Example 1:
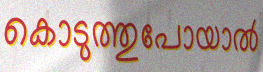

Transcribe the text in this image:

കൊടുത്തുപോയാൽ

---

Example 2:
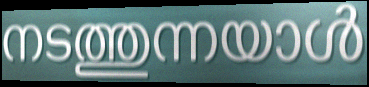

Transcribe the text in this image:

നടത്തുന്നയാൾ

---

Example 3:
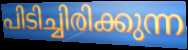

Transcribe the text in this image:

പിടിച്ചിരിക്കുന്ന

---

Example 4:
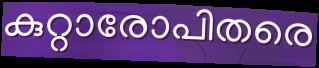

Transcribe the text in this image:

കുറ്റാരോപിതരെ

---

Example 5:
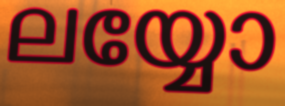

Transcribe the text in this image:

ലയ്യോ